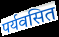
पर्यवसित